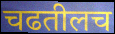
चढतीलच